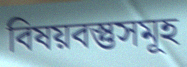
বিষয়বস্তুসমূহ